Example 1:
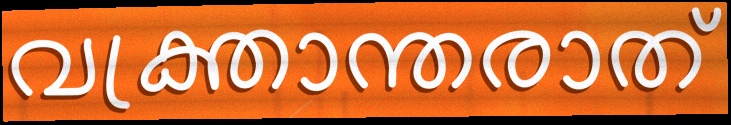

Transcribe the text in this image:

വക്ത്രാന്തരാത്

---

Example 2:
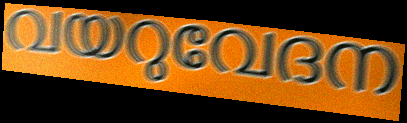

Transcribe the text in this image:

വയറുവേദന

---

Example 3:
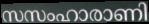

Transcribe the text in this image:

സസംഹാരാണി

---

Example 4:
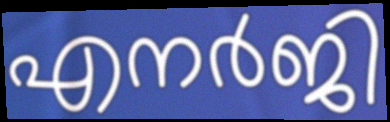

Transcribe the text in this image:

എനർജി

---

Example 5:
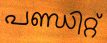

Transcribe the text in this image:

പണ്ഡിറ്റ്